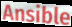
Ansible